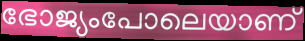
ഭോജ്യംപോലെയാണ്